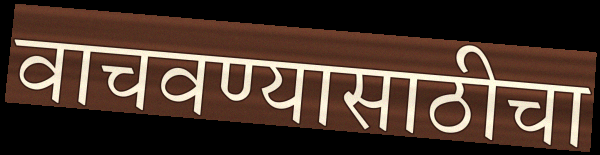
वाचवण्यासाठीचा